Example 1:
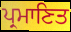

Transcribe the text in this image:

ਪ੍ਰਮਾਣਿਤ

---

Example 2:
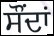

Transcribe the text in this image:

ਸੌਂਦਾਂ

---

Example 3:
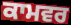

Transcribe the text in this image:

ਕਾਮਵਰ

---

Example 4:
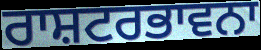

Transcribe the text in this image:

ਰਾਸ਼ਟਰਭਾਵਨਾ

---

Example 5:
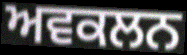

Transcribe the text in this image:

ਅਵਕਲਨ